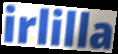
irlilla